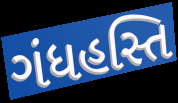
ગંધહસ્તિ